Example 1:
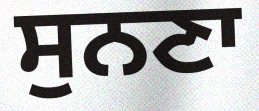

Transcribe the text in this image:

ਸੁਨਣਾ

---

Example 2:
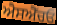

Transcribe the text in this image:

ਐਸਐੱਚਓ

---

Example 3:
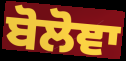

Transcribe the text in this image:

ਬੋਲੋਞਾ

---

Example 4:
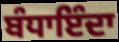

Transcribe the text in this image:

ਬੰਧਾਇੰਦਾ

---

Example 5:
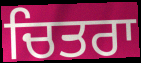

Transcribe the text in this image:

ਚਿਤਰਾ